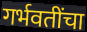
गर्भवतींचा